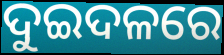
ଦୁଇଦଳରେ